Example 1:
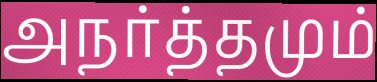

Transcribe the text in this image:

அநர்த்தமும்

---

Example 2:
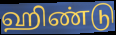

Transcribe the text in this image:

ஹிண்டு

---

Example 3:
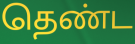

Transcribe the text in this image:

தெண்ட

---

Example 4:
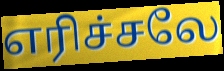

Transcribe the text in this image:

எரிச்சலே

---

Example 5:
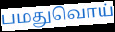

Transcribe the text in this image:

பமதுவொய்